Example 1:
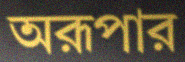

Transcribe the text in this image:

অরূপার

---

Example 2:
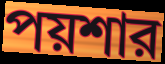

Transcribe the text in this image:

পয়শার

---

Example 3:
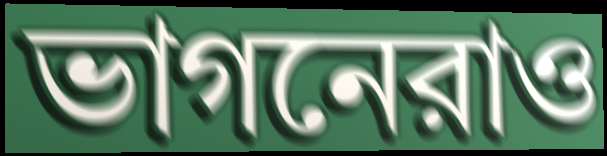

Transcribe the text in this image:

ভাগনেরাও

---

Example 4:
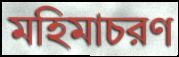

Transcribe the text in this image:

মহিমাচরণ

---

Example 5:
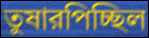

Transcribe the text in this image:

তুষারপিচ্ছিল